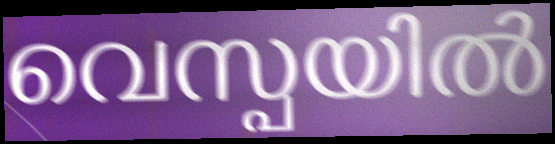
വെസ്പയിൽ